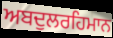
ਅਬਦੁਲਰਹਿਮਾਨ